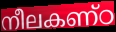
നീലകണ്ഠ